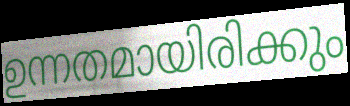
ഉന്നതമായിരിക്കും